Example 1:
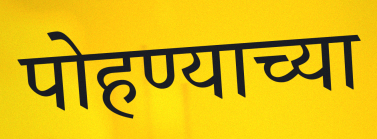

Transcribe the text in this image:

पोहण्याच्या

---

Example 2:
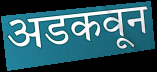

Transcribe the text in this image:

अडकवून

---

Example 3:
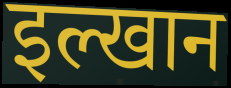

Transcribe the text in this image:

इल्खान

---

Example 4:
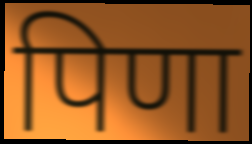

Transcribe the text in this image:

पिणा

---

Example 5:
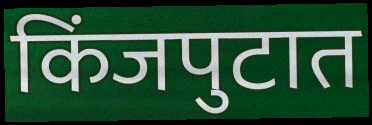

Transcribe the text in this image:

किंजपुटात